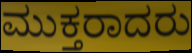
ಮುಕ್ತರಾದರು